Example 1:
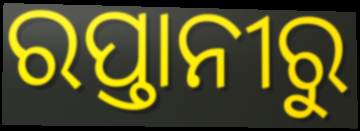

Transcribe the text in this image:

ରପ୍ତାନୀରୁ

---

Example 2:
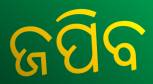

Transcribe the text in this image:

ଜପିବ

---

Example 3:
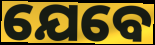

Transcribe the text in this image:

ଯେବେ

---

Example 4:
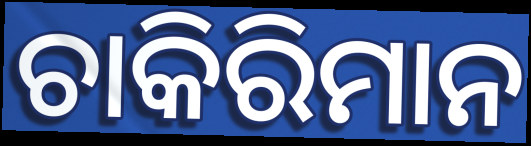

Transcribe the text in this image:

ଚାକିରିମାନ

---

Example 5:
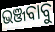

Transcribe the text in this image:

ଭଞ୍ଜବାବୁ